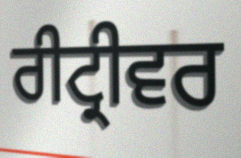
ਰੀਟ੍ਰੀਵਰ